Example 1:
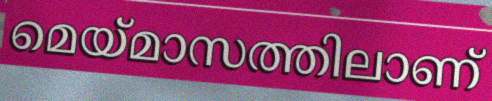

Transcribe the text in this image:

മെയ്മാസത്തിലാണ്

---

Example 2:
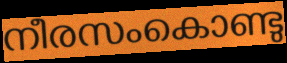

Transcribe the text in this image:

നീരസംകൊണ്ടു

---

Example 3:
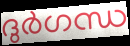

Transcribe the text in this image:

ദുർഗന്ധ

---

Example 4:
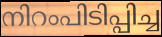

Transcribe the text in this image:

നിറംപിടിപ്പിച്ച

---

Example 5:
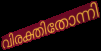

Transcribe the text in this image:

വിരക്തിതോന്നി